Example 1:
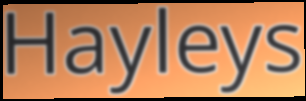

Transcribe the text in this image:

Hayleys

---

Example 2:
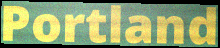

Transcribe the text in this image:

Portland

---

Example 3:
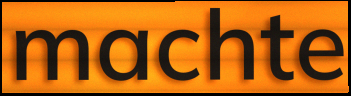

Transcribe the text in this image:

machte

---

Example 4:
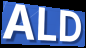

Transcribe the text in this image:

ALD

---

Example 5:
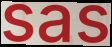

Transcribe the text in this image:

sas